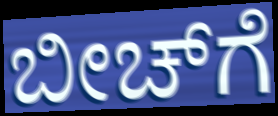
ಬೀಚ್‌ಗೆ